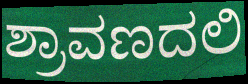
ಶ್ರಾವಣದಲಿ